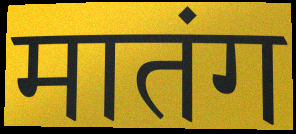
मातंग